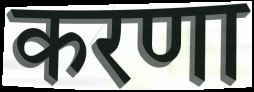
करणा